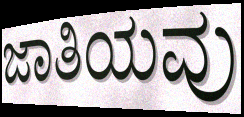
ಜಾತಿಯವು